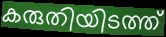
കരുതിയിടത്ത്